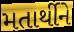
મતાર્થીને